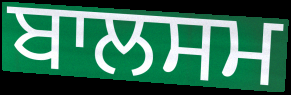
ਬਾਲਸਮ